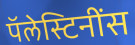
पॅलेस्टिनींस